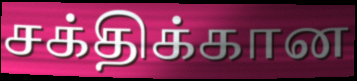
சக்திக்கான